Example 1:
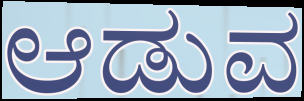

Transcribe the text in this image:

ಆಡುವ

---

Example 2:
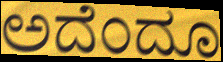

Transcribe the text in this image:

ಅದೆಂದೂ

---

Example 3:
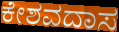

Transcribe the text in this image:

ಕೇಶವದಾಸ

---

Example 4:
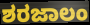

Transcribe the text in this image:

ಶರಜಾಲಂ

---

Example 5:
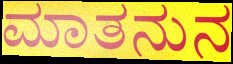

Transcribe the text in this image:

ಮಾತನುನ